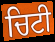
ਚਿਟੀ